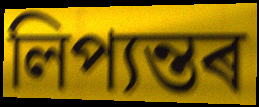
লিপ্যন্তৰ